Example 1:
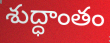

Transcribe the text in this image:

శుద్ధాంతం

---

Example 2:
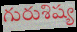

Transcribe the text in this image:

గురుశిష్య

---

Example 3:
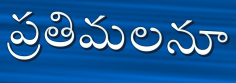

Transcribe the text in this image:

ప్రతిమలనూ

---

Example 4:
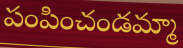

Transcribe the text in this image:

పంపించండమ్మా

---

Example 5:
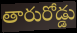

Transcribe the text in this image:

తారురోడ్డు